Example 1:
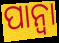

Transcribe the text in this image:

ପାନ୍ଵା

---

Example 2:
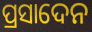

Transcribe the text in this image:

ପ୍ରସାଦେନ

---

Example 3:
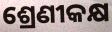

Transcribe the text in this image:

ଶ୍ରେଣୀକକ୍ଷ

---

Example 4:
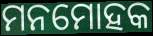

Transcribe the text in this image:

ମନମୋହକ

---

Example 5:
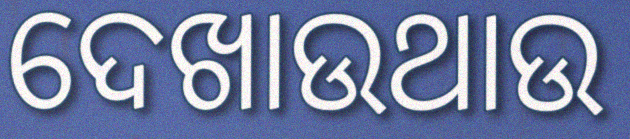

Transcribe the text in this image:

ଦେଖାଉଥାଉ